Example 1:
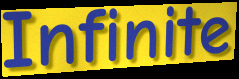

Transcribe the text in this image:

Infinite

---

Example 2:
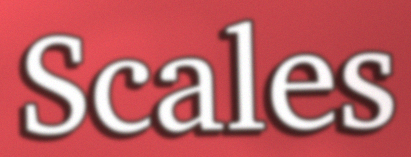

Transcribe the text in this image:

Scales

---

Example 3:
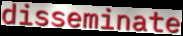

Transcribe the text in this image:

disseminate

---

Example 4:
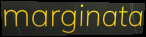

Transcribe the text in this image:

marginata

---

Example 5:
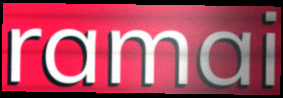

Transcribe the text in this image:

ramai